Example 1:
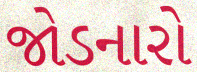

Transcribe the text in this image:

જોડનારો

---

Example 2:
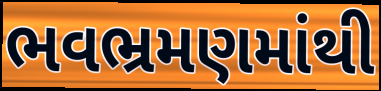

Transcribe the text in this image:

ભવભ્રમણમાંથી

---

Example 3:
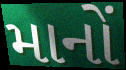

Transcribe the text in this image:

માનોં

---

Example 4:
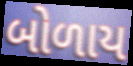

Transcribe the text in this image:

બોળાય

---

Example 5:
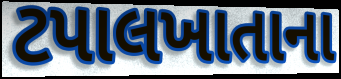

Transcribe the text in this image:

ટપાલખાતાના